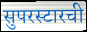
सुपरस्टारची